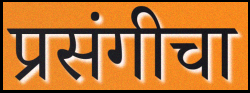
प्रसंगीचा